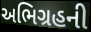
અભિગ્રહની